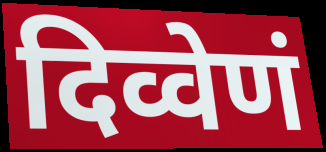
दिव्वेणं